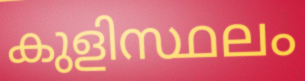
കുളിസ്ഥലം